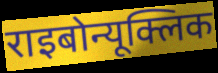
राइबोन्यूक्लिक